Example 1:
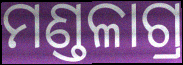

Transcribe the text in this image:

ମଣ୍ଡଳାଗ୍ର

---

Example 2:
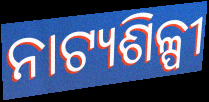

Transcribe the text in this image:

ନାଟ୍ୟଶିଳ୍ପୀ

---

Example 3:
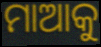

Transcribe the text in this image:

ମାଆକୁ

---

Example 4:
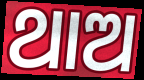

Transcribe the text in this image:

ଥାଅ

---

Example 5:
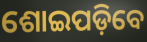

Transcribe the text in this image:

ଶୋଇପଡ଼ିବେ